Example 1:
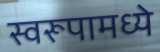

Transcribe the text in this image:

स्वरूपामध्ये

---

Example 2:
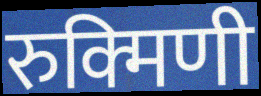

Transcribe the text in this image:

रुक्‍मिणी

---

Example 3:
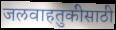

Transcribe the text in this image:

जलवाहतुकीसाठी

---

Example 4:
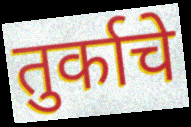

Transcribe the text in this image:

तुर्काचे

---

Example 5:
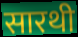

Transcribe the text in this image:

सारथी